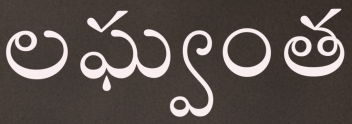
లఘ్వంత